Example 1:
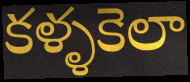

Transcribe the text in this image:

కళ్ళకెలా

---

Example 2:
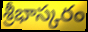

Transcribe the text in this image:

శ్రీభాస్కరం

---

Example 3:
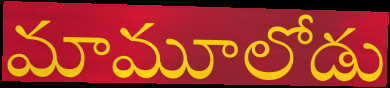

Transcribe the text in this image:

మామూలోడు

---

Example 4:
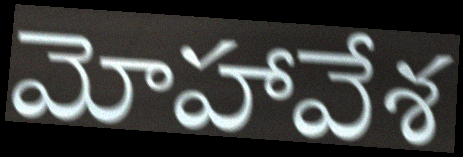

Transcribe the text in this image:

మోహావేశ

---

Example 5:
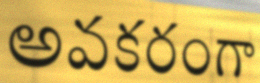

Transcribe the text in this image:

అవకరంగా